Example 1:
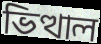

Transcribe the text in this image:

ভিত্থাল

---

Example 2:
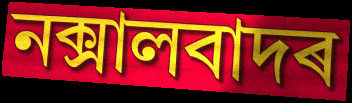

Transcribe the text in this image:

নক্সালবাদৰ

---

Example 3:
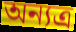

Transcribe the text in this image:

অন্যত্ৰ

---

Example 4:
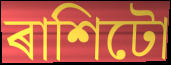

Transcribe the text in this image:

ৰাশিটো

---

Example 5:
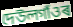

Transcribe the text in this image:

দেউলগাঁওৰ